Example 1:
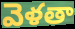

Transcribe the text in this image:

వెళతా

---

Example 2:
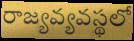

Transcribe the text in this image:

రాజ్యవ్యవస్థలో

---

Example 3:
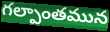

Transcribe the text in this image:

గల్పాంతమున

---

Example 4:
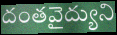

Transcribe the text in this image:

దంతవైద్యుని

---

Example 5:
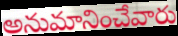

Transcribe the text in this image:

అనుమానించేవారు